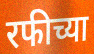
रफीच्या